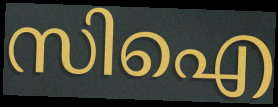
സിഐ